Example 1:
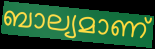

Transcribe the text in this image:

ബാല്യമാണ്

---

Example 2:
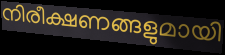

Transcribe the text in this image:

നിരീക്ഷണങ്ങളുമായി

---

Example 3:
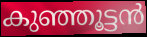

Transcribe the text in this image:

കുഞ്ഞൂട്ടൻ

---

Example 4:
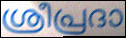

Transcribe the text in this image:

ശ്രീപ്രദാ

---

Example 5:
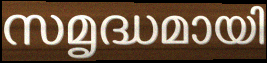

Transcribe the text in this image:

സമൃദ്ധമായി